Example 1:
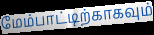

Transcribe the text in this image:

மேம்பாட்டிற்காகவும்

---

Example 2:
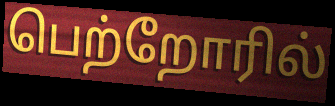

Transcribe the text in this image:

பெற்றோரில்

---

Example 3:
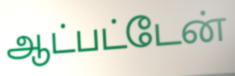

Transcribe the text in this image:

ஆட்பட்டேன்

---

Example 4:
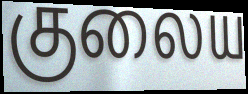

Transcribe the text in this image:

குலைய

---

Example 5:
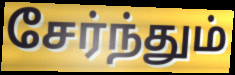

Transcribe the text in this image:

சேர்ந்தும்